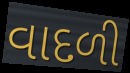
વાદળી